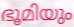
ഭൂമിയും